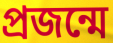
প্রজন্মে